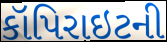
કૉપિરાઇટની